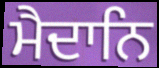
ਮੈਦਾਨਿ